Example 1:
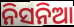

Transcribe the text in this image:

ନିସନିଆ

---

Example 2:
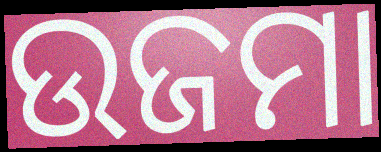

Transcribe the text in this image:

ଉଜମା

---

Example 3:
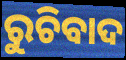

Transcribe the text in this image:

ରୁଚିବାଦ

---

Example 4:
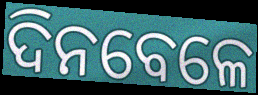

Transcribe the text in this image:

ଦିନବେଳେ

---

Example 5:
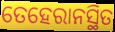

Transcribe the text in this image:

ତେହେରାନସ୍ଥିତ